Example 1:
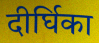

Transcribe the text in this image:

दीर्घिका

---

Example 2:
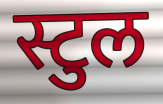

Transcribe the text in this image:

स्टुल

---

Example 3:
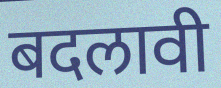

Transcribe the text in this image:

बदलावी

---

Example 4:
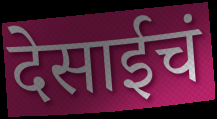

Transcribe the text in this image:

देसाईचं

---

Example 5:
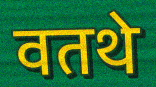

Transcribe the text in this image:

वतथे